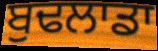
ਬੁਢਲਾਡਾ